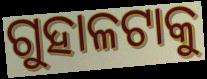
ଗୁହାଳଟାକୁ